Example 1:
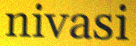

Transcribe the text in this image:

nivasi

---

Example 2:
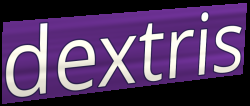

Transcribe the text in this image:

dextris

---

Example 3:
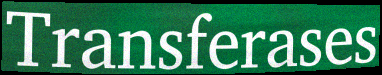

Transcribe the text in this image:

Transferases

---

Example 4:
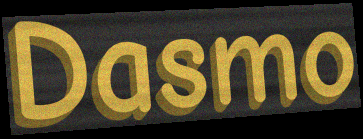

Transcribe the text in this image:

Dasmo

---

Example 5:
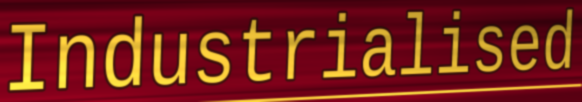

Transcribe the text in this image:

Industrialised